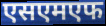
एसएमएफ